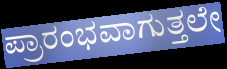
ಪ್ರಾರಂಭವಾಗುತ್ತಲೇ